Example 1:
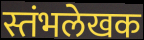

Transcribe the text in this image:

स्तंभलेखक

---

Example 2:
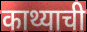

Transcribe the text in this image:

काथ्याची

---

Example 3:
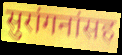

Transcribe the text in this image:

सुरांगनांसह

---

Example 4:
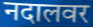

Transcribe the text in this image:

नदालवर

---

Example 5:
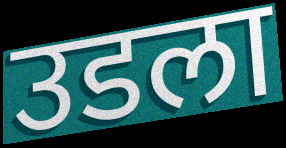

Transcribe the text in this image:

उडला